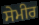
ਸੇਮੀਰ